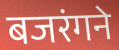
बजरंगने